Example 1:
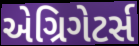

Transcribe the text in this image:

એગ્રિગેટર્સ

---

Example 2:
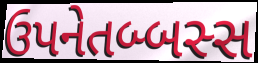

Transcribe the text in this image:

ઉપનેતબ્બસ્સ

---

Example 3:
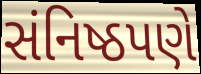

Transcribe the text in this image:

સંનિષ્ઠપણે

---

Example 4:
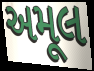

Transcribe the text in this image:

અમૂલ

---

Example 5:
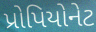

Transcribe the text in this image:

પ્રોપિયોનેટ